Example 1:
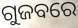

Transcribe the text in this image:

ଗୁଜବରେ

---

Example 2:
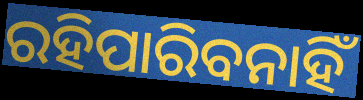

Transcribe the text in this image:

ରହିପାରିବନାହିଁ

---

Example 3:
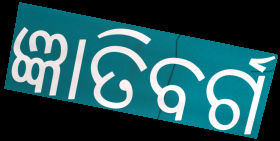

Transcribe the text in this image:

ଜ୍ଞାତିବର୍ଗ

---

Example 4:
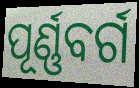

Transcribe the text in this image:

ପୂର୍ଣ୍ଣବର୍ଗ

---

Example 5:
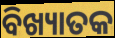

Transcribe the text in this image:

ବିଖ୍ୟାତକ